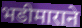
भडीमाराने